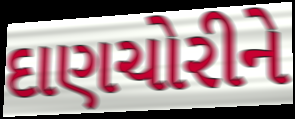
દાણચોરીને